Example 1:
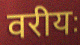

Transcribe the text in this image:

वरीयः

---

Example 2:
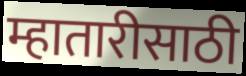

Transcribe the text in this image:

म्हातारीसाठी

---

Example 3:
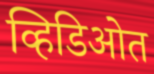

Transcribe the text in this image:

व्हिडिओत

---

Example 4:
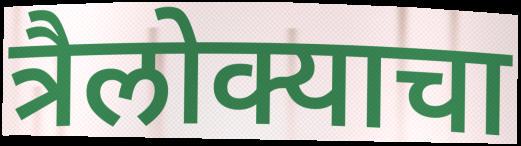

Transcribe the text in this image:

त्रैलोक्याचा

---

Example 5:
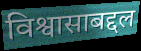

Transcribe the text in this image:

विश्वासाबद्दल